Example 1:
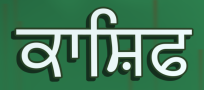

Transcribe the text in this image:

ਕਾਸ਼ਿਫ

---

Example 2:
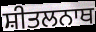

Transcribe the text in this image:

ਸ਼ੀਤਲਨਾਥ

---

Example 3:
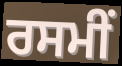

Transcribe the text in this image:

ਰਸਮੀਂ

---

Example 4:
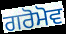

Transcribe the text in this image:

ਗਰੋਮੋਵ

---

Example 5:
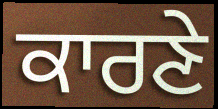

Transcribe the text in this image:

ਕਾਰਣੇ